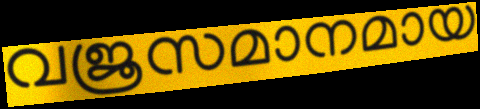
വജ്രസമാനമായ